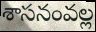
శాసనంవల్ల